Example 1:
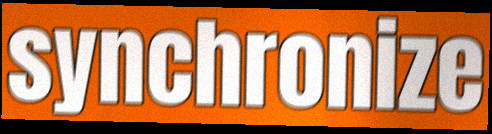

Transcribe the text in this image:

synchronize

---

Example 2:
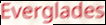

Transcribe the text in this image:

Everglades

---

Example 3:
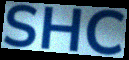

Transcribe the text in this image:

SHC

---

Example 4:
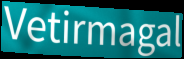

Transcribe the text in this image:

Vetirmagal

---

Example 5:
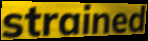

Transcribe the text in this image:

strained